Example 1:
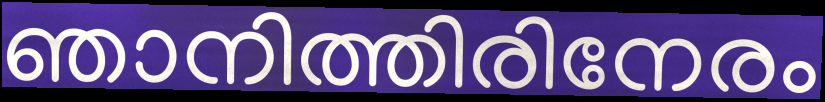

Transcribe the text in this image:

ഞാനിത്തിരിനേരം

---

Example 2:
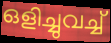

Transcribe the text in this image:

ഒളിച്ചുവച്ച്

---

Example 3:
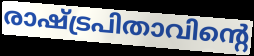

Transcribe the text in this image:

രാഷ്ട്രപിതാവിന്റെ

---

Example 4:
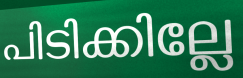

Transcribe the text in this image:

പിടിക്കില്ലേ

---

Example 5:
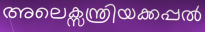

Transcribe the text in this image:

അലെക്സന്ത്രിയക്കപ്പൽ